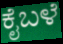
ಕೈಬಳೆ